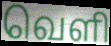
வெளி